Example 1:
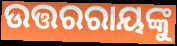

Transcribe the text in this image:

ଉତ୍ତରରାୟଙ୍କୁ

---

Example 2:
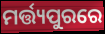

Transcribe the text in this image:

ମର୍ତ୍ତ୍ୟପୁରରେ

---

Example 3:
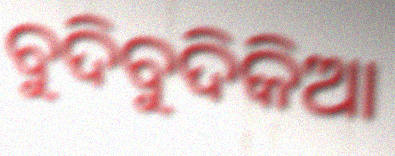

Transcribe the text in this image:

ବୁଦିବୁଦିକିଆ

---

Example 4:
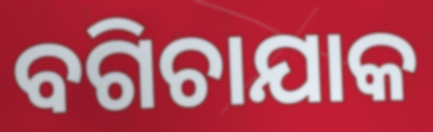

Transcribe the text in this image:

ବଗିଚାଯାକ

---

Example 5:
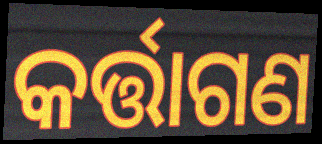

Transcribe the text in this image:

କର୍ତ୍ତାଗଣ